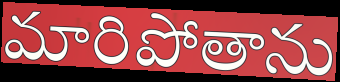
మారిపోతాను